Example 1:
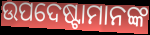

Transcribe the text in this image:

ଉପଦେଷ୍ଟାମାନଙ୍କ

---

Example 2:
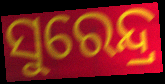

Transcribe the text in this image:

ସୁରେନ୍ଦ୍ର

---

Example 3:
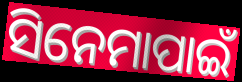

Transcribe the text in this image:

ସିନେମାପାଇଁ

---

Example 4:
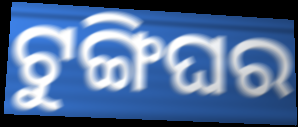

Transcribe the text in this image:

ଟୁଙ୍ଗିଘର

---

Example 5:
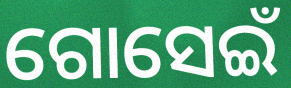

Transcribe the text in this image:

ଗୋସେଇଁ